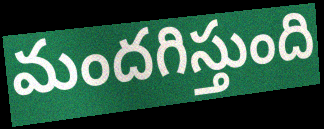
మందగిస్తుంది